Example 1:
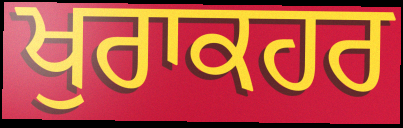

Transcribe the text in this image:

ਖੁਰਾਕਹਰ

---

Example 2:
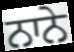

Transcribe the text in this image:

ਨਾਨੇ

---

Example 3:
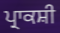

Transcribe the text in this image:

ਪ੍ਰਾਕਸ਼ੀ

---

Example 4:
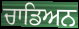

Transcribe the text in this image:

ਚਾਡਿਅਨ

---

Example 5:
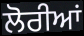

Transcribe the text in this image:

ਲੋਰੀਆਂ